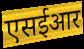
एसईआर